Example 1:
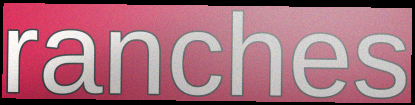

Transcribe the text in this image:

ranches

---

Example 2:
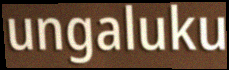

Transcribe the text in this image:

ungaluku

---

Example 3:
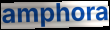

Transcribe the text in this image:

amphora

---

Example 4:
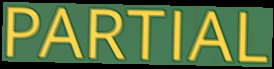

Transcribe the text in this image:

PARTIAL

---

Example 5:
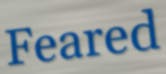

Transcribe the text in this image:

Feared